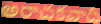
అరాచకవాది